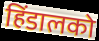
हिंडालको